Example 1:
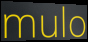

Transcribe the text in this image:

mulo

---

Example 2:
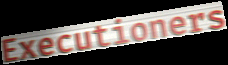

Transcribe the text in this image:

Executioners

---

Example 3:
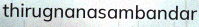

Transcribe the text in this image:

thirugnanasambandar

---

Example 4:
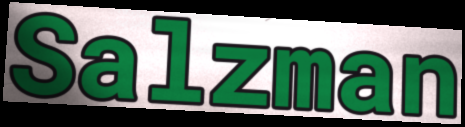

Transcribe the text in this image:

Salzman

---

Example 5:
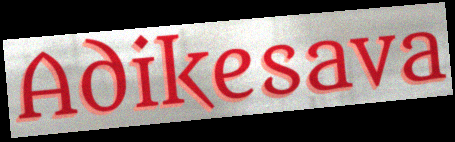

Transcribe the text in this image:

Adikesava